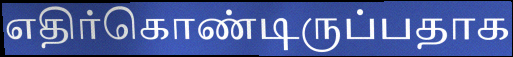
எதிர்கொண்டிருப்பதாக